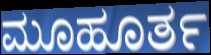
ಮೂಹೂರ್ತ